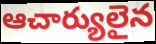
ఆచార్యులైన